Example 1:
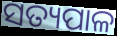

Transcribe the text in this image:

ସତ୍ୟପାଳ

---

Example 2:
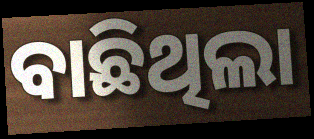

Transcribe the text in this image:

ବାଛିଥିଲା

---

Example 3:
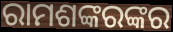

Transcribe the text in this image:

ରାମଶଙ୍କରଙ୍କର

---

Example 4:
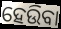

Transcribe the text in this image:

ହେଉିବା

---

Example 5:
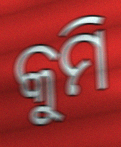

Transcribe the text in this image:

କୁମି